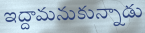
ఇద్దామనుకున్నాడు